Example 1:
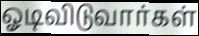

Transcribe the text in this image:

ஓடிவிடுவார்கள்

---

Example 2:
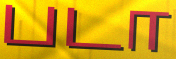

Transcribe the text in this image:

படா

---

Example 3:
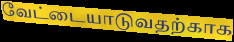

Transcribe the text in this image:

வேட்டையாடுவதற்காக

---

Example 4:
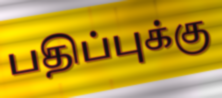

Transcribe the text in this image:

பதிப்புக்கு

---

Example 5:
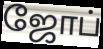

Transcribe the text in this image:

ஜோப்